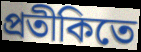
প্রতীকিতে